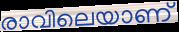
രാവിലെയാണ്